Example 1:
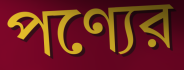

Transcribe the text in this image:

পণ্যের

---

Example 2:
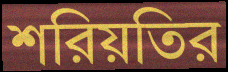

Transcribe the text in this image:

শরিয়তির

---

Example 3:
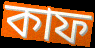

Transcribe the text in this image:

কাফ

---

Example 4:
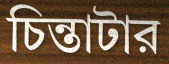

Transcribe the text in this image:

চিন্তাটার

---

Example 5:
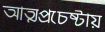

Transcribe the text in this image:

আত্মপ্রচেষ্টায়